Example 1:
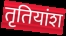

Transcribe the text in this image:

तृतियांश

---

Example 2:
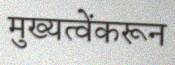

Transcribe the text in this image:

मुख्यत्वेंकरून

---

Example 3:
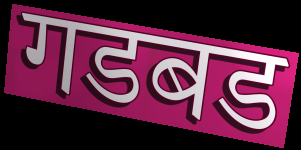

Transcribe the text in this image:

गडबड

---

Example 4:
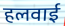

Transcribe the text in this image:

हलवाई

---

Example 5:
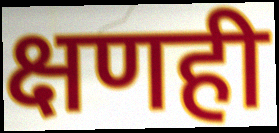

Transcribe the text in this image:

क्षणही